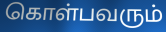
கொள்பவரும்